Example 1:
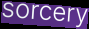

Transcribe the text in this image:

sorcery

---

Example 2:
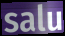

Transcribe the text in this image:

salu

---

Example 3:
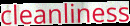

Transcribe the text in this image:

cleanliness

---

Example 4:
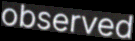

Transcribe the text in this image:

observed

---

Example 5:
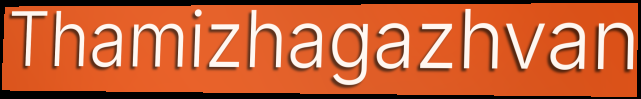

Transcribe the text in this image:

Thamizhagazhvan